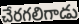
చేరగలిగాడు